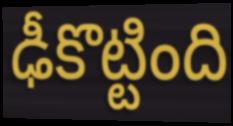
ఢీకొట్టింది